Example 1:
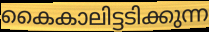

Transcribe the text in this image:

കൈകാലിട്ടടിക്കുന്ന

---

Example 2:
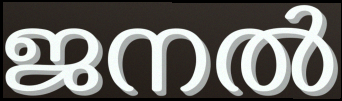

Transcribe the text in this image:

ജനൽ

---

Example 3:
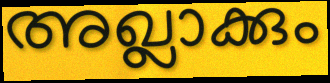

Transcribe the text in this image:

അഖ്ലാക്കും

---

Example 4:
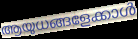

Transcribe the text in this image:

ആയുധങ്ങളേക്കാൾ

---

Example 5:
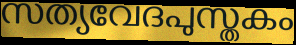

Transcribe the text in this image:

സത്യവേദപുസ്തകം